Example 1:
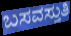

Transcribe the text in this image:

ಬಸವಸ್ತುತಿ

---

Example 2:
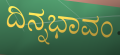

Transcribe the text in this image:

ದಿನ್ನಭಾವಂ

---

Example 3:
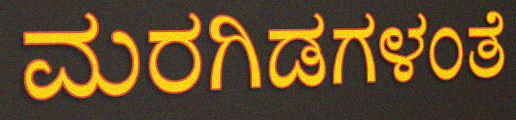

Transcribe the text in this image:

ಮರಗಿಡಗಳಂತೆ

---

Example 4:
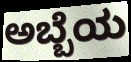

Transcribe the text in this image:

ಅಬ್ಬೆಯ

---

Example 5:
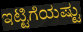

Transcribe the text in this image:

ಇಟ್ಟಿಗೆಯಷ್ಟು